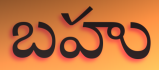
బహు